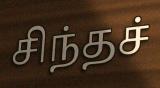
சிந்தச்